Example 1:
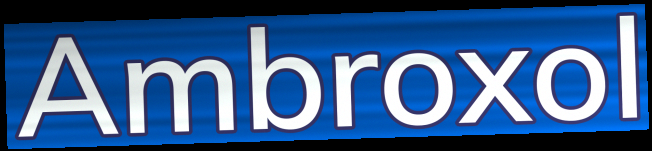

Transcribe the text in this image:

Ambroxol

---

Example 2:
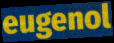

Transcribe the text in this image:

eugenol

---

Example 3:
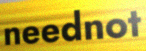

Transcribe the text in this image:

neednot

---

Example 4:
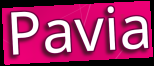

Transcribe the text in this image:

Pavia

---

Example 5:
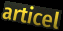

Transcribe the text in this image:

articel